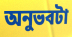
অনুভবটা